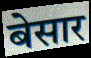
बेसार